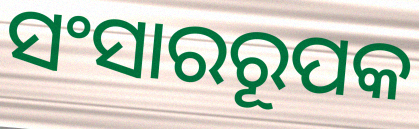
ସଂସାରରୂପକ